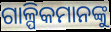
ଗାଳ୍ପିକମାନଙ୍କୁ